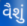
વૈશું